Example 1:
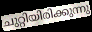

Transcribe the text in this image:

ചുറ്റിയിരിക്കുന്നു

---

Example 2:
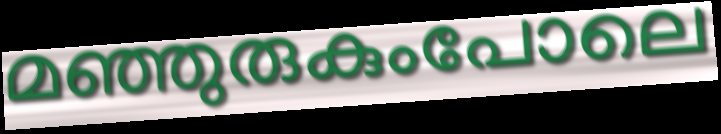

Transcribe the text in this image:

മഞ്ഞുരുകുംപോലെ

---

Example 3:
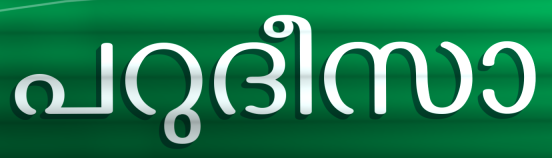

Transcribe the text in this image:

പറുദീസാ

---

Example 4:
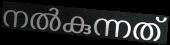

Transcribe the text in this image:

നൽകുന്നത്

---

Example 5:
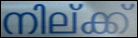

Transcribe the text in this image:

നില്ക്ക്